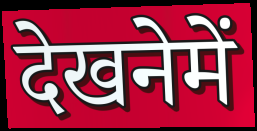
देखनेमें